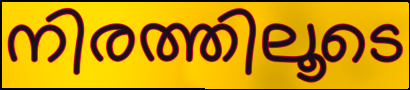
നിരത്തിലൂടെ